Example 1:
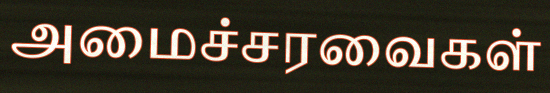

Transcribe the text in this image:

அமைச்சரவைகள்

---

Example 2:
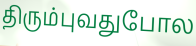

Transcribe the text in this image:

திரும்புவதுபோல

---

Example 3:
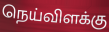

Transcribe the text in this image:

நெய்விளக்கு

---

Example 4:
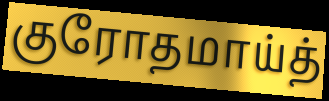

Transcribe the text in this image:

குரோதமாய்த்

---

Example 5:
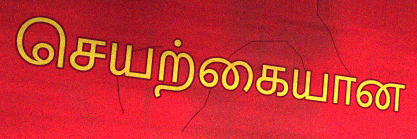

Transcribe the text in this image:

செயற்கையான